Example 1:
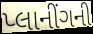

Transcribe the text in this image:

પ્લાનીંગની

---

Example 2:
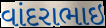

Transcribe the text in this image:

વાંદરાભાઇ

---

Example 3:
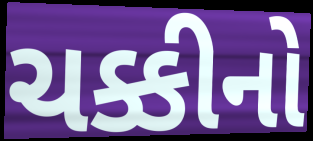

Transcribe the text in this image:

ચક્કીનો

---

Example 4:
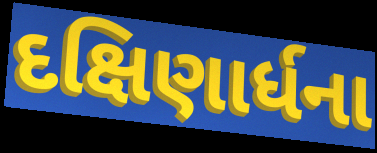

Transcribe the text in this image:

દક્ષિણાર્ધના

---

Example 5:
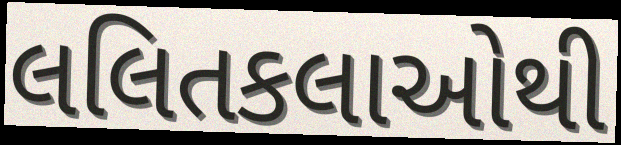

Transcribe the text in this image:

લલિતકલાઓથી